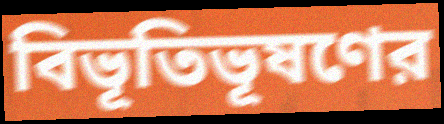
বিভূতিভূষণের